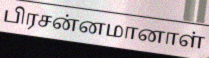
பிரசன்னமானாள்